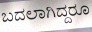
ಬದಲಾಗಿದ್ದರೂ